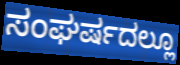
ಸಂಘರ್ಷದಲ್ಲೂ